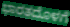
ಭಾರತದೊಳಗೆ